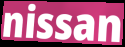
nissan